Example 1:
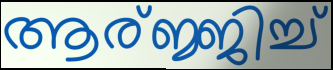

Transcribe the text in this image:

ആര്ജ്ജിച്ച്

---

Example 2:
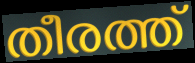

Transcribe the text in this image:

തീരത്ത്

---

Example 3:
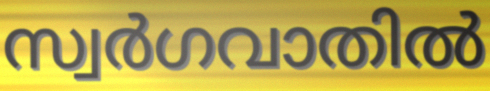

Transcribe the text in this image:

സ്വർഗവാതിൽ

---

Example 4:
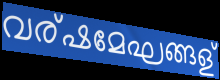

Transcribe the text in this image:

വര്ഷമേഘങ്ങള്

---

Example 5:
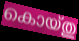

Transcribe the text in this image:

കൊയ്തു